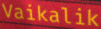
Vaikalik